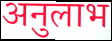
अनुलाभ